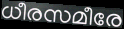
ധീരസമീരേ